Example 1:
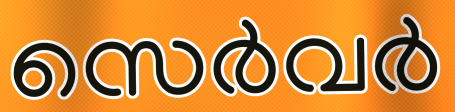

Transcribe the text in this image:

സെർവർ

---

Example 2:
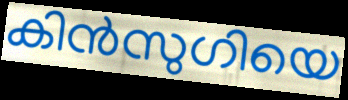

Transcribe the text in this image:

കിൻസുഗിയെ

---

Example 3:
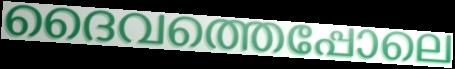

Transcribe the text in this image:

ദൈവത്തെപ്പോലെ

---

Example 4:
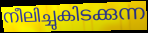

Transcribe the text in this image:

നീലിച്ചുകിടക്കുന്ന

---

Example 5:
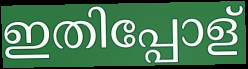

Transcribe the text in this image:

ഇതിപ്പോള്